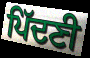
ਪਿੱਦਣੀ